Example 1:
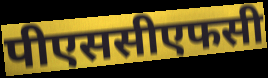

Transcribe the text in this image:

पीएससीएफसी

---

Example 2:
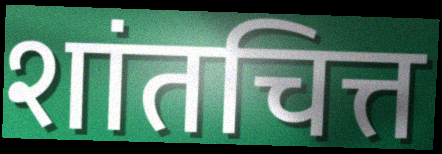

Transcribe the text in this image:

शांतचित्त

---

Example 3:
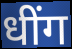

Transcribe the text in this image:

धींग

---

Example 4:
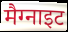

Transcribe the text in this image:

मैग्नाइट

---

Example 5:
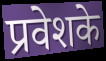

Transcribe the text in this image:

प्रवेशके